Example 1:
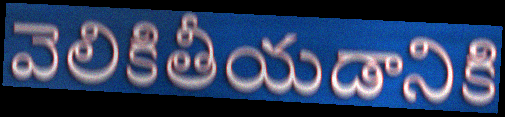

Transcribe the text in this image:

వెలికితీయడానికి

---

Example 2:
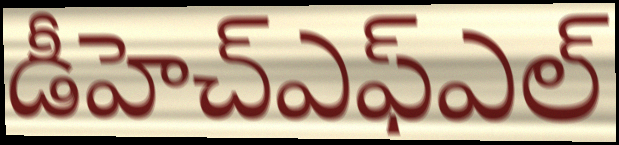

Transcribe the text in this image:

డీహెచ్ఎఫ్ఎల్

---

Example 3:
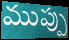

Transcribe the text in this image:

ముప్పు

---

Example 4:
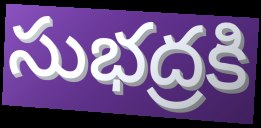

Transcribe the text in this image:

సుభద్రకి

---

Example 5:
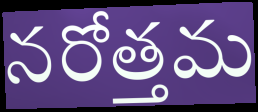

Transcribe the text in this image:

నరోత్తమ